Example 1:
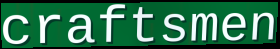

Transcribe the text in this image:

craftsmen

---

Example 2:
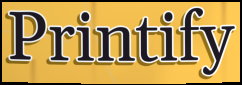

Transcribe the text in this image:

Printify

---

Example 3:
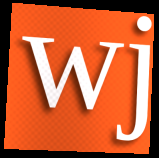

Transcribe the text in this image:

wj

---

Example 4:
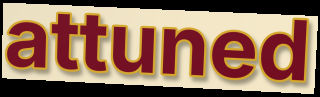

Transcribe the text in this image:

attuned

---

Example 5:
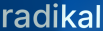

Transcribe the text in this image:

radikal